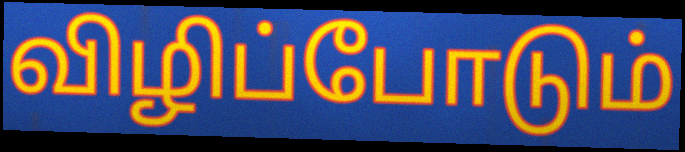
விழிப்போடும்